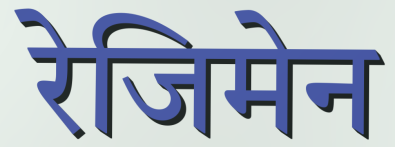
रेजिमेन